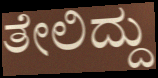
ತೇಲಿದ್ದು